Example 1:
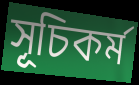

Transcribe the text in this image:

সূচিকৰ্ম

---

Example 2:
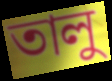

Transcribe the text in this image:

তালু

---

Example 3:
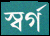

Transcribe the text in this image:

স্বৰ্গ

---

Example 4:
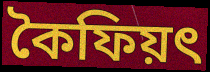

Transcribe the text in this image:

কৈফিয়ৎ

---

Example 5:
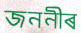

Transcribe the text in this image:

জননীৰ